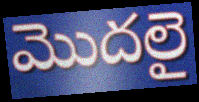
మొదలై